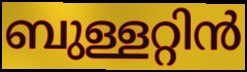
ബുള്ളറ്റിൻ